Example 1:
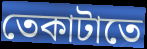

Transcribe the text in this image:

তেকাটাতে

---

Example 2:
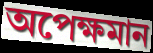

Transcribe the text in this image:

অপেক্ষমান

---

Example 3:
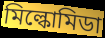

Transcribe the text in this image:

মিল্কোমিডা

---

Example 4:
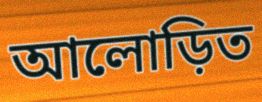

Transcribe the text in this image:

আলোড়িত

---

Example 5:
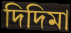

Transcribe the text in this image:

দিদিমা